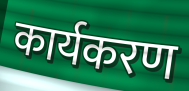
कार्यकरण